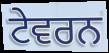
ਟੇਵਰਨ